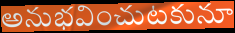
అనుభవించుటకునూ